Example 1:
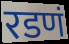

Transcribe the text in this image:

रडणं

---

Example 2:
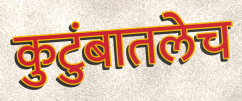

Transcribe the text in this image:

कुटुंबातलेच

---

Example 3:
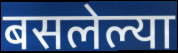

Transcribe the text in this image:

बसलेल्या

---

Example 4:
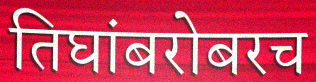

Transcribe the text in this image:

तिघांबरोबरच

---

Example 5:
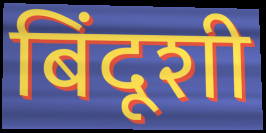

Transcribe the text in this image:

बिंदूशी